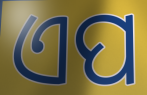
ଏପ